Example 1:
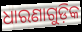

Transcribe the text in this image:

ଧାରଣାଗୁଡ଼ିକ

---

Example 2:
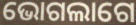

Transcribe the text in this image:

ଭୋଗଲାଗେ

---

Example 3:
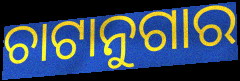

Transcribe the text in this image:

ଚାଟାନୁଗାର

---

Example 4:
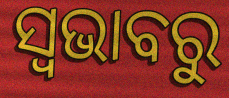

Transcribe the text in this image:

ସ୍ଵଭାବରୁ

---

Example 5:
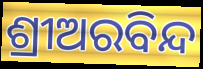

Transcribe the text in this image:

ଶ୍ରୀଅରବିନ୍ଦ